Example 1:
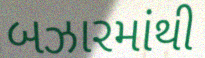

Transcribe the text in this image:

બઝારમાંથી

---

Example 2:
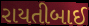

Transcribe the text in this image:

રાયતીબાઈ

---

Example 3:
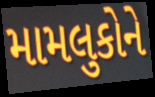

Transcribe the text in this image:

મામલુકોને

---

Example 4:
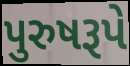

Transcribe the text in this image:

પુરુષરૂપે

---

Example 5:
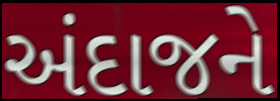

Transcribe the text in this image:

અંદાજને